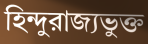
হিন্দুরাজ্যভুক্ত